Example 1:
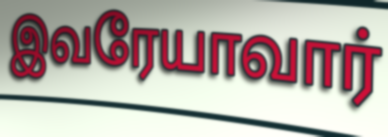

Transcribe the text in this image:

இவரேயாவார்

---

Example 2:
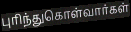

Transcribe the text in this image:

புரிந்துகொள்வார்கள்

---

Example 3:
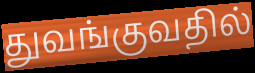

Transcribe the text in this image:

துவங்குவதில்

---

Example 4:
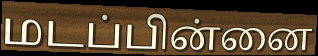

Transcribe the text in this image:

மடப்பின்னை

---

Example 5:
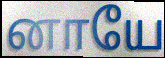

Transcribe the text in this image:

னாயே